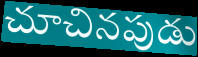
చూచినపుడు